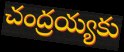
చంద్రయ్యకు